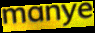
manye